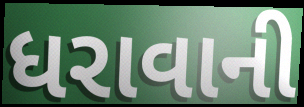
ધરાવાની